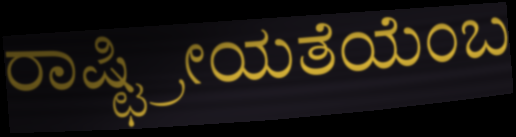
ರಾಷ್ಟ್ರೀಯತೆಯೆಂಬ